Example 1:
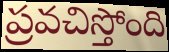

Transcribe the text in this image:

ప్రవచిస్తోంది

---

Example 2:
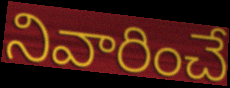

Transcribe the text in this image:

నివారించే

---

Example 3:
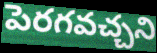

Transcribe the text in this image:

పెరగవచ్చని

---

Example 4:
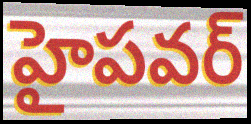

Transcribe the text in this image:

హైపవర్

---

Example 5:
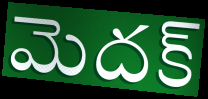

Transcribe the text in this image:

మెదక్